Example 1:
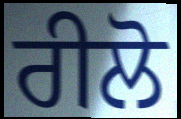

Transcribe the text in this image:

ਰੀਲੋ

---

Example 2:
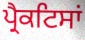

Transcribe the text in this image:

ਪ੍ਰੈਕਟਿਸਾਂ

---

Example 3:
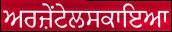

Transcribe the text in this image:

ਅਰਜ਼ੇਂਟੇਲਸਕਾਇਆ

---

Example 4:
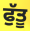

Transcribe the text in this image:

ਫੁੱਤੂ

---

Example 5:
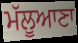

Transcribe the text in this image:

ਮੱਲੂਆਣਾ